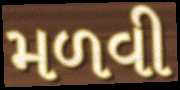
મળવી